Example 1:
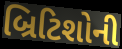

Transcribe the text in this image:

બ્રિટિશોની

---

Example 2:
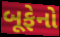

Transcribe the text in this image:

બૂફેનો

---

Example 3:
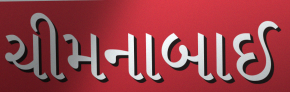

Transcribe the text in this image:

ચીમનાબાઈ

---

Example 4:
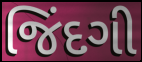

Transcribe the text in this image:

જિંદગી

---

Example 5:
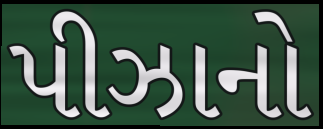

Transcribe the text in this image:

પીઝાનો